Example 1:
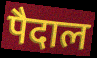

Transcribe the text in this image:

पैदाल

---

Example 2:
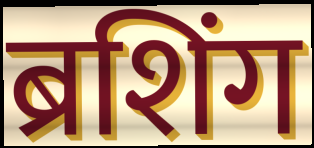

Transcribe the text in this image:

ब्रशिंग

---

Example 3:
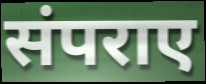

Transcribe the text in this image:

संपराए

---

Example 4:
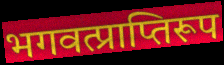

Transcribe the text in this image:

भगवत्प्राप्तिरूप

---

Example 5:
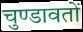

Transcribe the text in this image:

चुण्डावतों